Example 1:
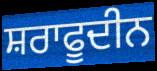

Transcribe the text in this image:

ਸ਼ਰਾਫੂਦੀਨ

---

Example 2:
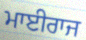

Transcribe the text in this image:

ਮਾਈਰਾਜ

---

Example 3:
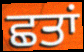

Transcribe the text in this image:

ਛਤਾਂ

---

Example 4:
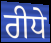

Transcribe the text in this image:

ਰੀਧੇ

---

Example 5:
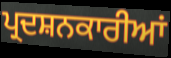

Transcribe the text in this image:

ਪ੍ਰਦਸ਼ਨਕਾਰੀਆਂ